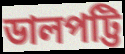
ডালপট্টি